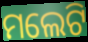
ମଲେଟି